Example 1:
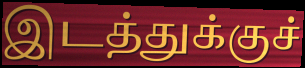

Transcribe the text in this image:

இடத்துக்குச்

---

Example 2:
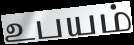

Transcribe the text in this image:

உபயம்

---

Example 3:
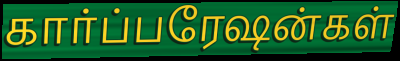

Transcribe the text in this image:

கார்ப்பரேஷன்கள்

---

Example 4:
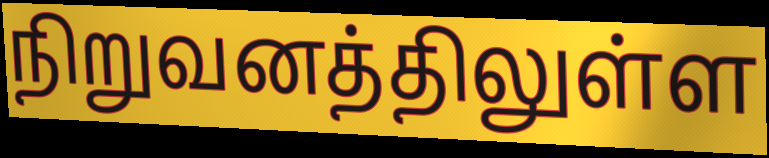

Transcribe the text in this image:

நிறுவனத்திலுள்ள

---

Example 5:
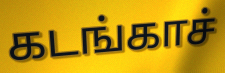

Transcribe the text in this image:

கடங்காச்